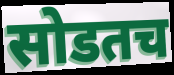
सोडतच